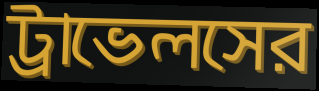
ট্রাভেলসের